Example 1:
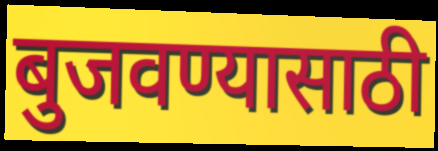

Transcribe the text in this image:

बुजवण्यासाठी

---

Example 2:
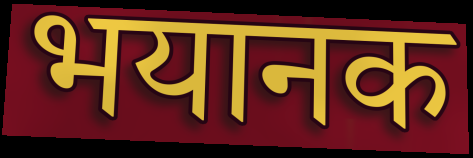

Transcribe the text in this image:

भयानक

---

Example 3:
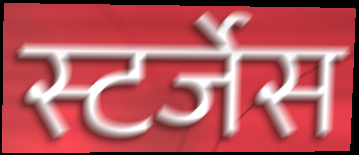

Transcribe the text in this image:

स्टर्जेस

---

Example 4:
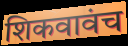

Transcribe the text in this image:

शिकवावंच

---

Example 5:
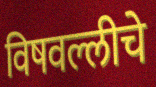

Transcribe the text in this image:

विषवल्लीचे